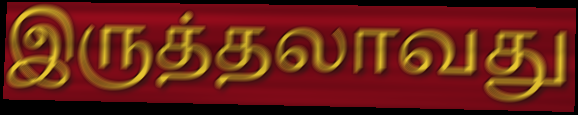
இருத்தலாவது